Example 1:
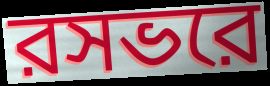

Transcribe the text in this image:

রসভরে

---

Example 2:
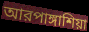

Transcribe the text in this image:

আরপাঙ্গাশিয়া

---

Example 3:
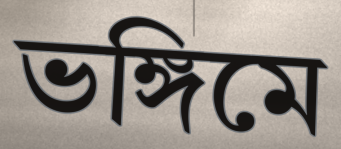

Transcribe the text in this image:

ভঙ্গিমে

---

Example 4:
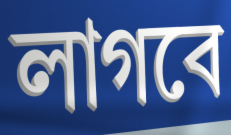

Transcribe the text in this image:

লাগবে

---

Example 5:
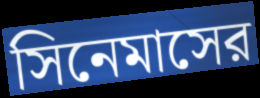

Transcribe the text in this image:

সিনেমাসের